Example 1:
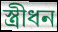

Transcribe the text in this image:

স্ত্রীধন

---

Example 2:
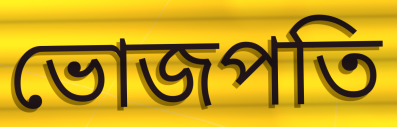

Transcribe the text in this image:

ভোজপতি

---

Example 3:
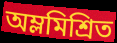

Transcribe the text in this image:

অম্লমিশ্রিত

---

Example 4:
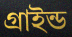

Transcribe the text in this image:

গ্রাইন্ড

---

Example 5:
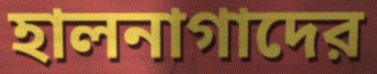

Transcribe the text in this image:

হালনাগাদের